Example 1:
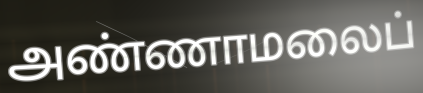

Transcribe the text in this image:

அண்ணாமலைப்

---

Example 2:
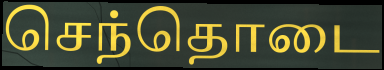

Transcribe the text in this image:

செந்தொடை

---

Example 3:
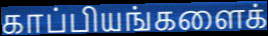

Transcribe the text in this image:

காப்பியங்களைக்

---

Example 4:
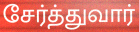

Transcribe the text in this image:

சேர்த்துவார்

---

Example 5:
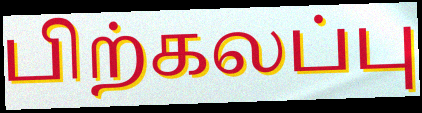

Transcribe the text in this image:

பிற்கலப்பு